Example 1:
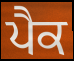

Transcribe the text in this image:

ਪੈਕ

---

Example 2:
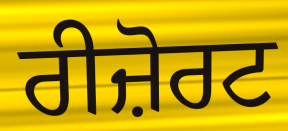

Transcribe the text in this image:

ਰੀਜ਼ੋਰਟ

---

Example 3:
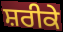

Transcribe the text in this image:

ਸ਼ਰੀਕੇ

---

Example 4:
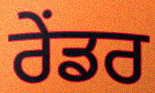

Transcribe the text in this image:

ਰੇੰਡਰ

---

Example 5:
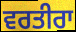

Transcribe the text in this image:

ਵਰਤੀਰਾ